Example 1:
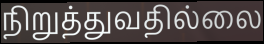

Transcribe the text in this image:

நிறுத்துவதில்லை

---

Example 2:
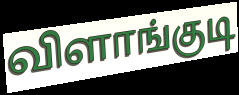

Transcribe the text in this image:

விளாங்குடி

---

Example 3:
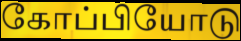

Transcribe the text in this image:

கோப்பியோடு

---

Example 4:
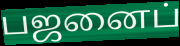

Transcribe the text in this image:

பஜனைப்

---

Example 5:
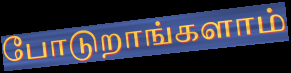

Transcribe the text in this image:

போடுறாங்களாம்